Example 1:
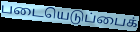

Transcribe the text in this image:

படையெடுப்பைக்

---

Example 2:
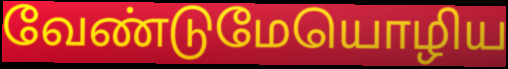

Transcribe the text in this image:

வேண்டுமேயொழிய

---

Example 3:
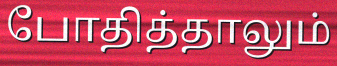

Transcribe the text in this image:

போதித்தாலும்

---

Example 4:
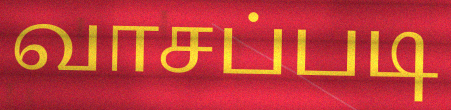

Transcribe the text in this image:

வாசப்படி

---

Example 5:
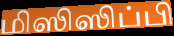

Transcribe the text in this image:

மிஸிஸிப்பி